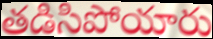
తడిసిపోయారు